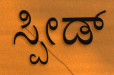
ಸ್ಪೀಡ್